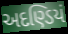
અદણ્ડિયં